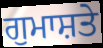
ਗੁਮਾਸ਼ਤੇ